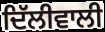
ਦਿੱਲੀਵਾਲੀ